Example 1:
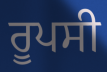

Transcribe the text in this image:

ਰੂਪਸੀ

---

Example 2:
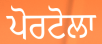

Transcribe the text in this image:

ਪੋਰਟੋਲਾ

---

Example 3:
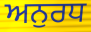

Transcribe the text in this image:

ਅਨੁਰਧ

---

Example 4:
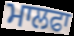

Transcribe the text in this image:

ਮਾਲਫਾ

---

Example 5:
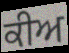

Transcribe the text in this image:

ਕੀਅ